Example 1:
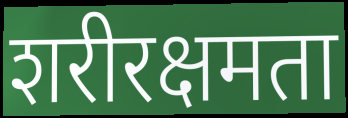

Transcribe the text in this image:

शरीरक्षमता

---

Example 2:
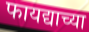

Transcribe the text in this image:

फायद्याच्या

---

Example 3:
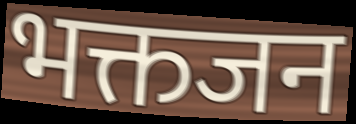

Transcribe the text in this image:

भक्तजन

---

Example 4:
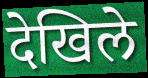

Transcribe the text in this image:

देखिले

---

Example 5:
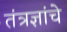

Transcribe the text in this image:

तंत्रज्ञांचे